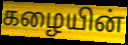
கழையின்